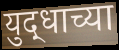
युद्धाच्या